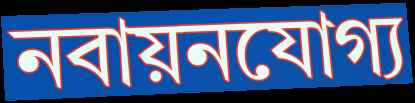
নবায়নযোগ্য